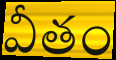
వీతం